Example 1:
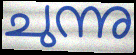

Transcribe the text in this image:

ചുന്നു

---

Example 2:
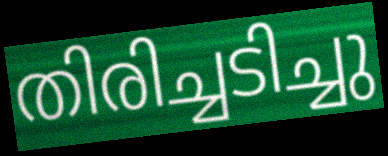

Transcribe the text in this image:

തിരിച്ചടിച്ചു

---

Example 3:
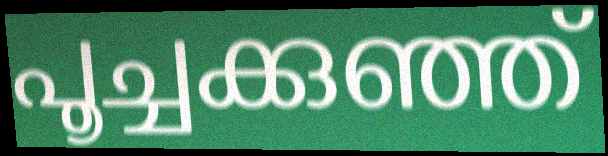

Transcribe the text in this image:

പൂച്ചക്കുഞ്ഞ്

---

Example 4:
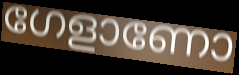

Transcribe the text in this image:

ഗേളാണോ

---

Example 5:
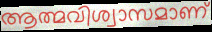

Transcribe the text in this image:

ആത്മവിശ്വാസമാണ്